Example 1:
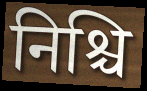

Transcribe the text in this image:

निश्चि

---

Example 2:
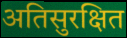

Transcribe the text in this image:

अतिसुरक्षित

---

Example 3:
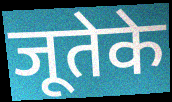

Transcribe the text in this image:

जूतेके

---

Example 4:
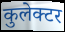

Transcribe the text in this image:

कुलेक्टर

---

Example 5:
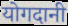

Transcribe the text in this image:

योगदानी